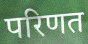
परिणत